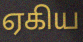
ஏகிய